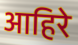
आहिरे